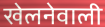
खेलनेवाली